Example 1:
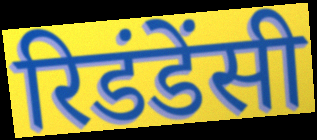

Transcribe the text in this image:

रिडंडेंसी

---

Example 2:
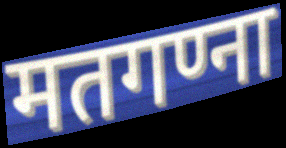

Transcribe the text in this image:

मतगण्ना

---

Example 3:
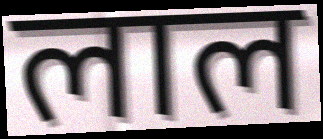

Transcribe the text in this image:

लाल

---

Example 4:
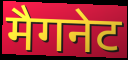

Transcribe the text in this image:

मैगनेट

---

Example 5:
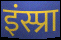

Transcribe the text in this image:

इंस्प्रा